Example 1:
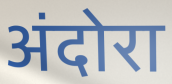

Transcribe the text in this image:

अंदोरा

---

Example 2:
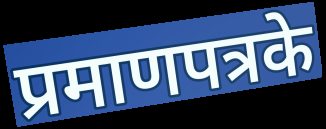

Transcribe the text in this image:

प्रमाणपत्रके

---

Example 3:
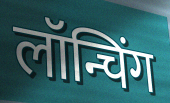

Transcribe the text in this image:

लॉन्चिंग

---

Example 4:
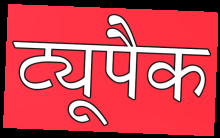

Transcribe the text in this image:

ट्यूपैक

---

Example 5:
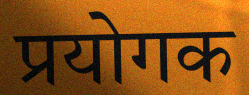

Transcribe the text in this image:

प्रयोगक